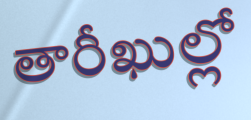
తారీఖుల్లో